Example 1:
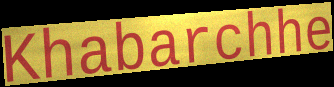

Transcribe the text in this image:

Khabarchhe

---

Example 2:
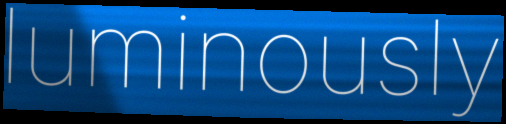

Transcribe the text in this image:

luminously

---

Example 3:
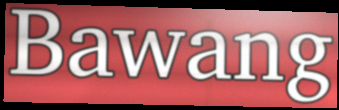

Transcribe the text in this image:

Bawang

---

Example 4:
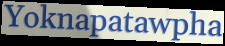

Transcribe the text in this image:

Yoknapatawpha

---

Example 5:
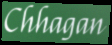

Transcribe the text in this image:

Chhagan